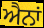
ਐਨਾਂ